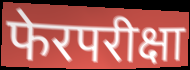
फेरपरीक्षा